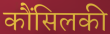
कौंसिलकी